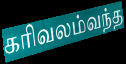
கரிவலம்வந்த